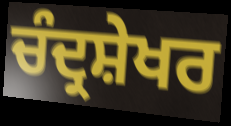
ਚੰਦ੍ਰਸ਼ੇਖਰ